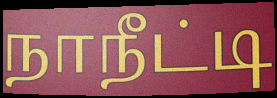
நாநீட்டி